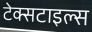
टेक्सटाइल्स